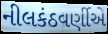
નીલકંઠવર્ણીએ